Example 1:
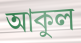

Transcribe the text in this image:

আকুল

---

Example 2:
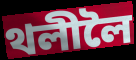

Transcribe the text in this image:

থলীলৈ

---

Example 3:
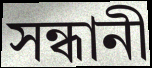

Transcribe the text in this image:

সন্ধানী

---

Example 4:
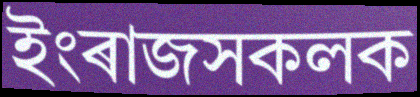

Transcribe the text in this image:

ইংৰাজসকলক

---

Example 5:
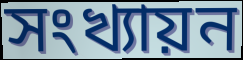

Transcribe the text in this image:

সংখ্যায়ন